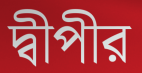
দ্বীপীর